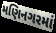
મણિનગરમાં